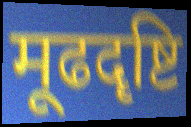
मूढदृष्टि